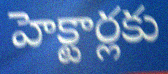
హెక్టార్లకు